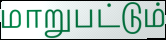
மாறுபட்டும்